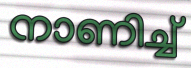
നാണിച്ച്